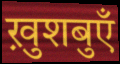
ख़ुशबुएँ